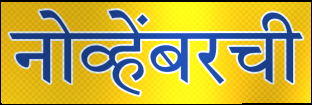
नोव्हेंबरची